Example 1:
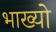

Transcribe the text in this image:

भाख्यो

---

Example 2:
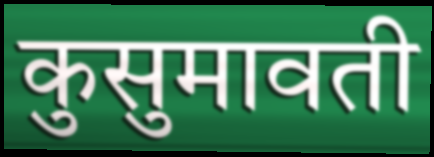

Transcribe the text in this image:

कुसुमावती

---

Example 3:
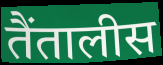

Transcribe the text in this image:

तैंतालीस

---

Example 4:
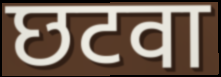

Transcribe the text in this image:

छटवा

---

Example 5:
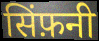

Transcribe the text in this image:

सिंफ़नी